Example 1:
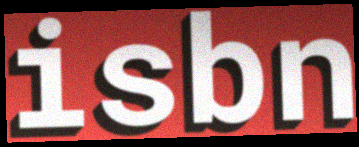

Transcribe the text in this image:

isbn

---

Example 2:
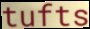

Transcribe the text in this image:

tufts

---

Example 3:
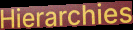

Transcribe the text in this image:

Hierarchies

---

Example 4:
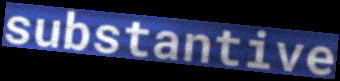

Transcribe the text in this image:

substantive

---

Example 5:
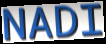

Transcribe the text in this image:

NADI